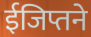
ईजिप्तने